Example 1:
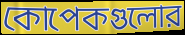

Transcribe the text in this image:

কোপেকগুলোর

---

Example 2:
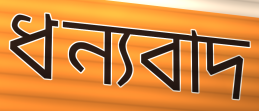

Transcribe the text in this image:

ধন্যবাদ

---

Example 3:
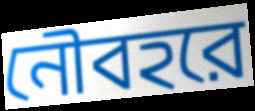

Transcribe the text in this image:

নৌবহরে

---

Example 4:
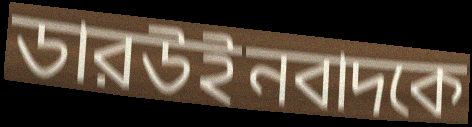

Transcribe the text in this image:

ডারউইনবাদকে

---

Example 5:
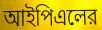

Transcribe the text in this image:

আইপিএলের